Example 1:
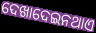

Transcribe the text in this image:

ଦେଖାଦେଇନଥାଏ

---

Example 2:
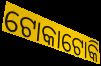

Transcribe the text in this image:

ଟୋକାଟୋକି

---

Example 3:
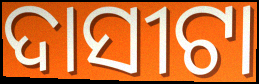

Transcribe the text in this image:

ଦାସୀଟା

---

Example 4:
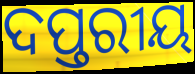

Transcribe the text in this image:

ଦପ୍ତରୀୟ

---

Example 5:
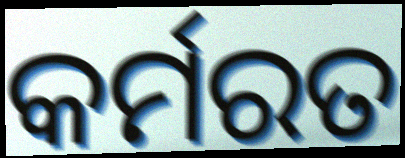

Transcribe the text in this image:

କର୍ମରତ